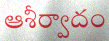
ఆశీర్వాదం